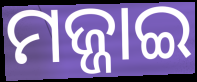
ମଜ୍ଜାଇ